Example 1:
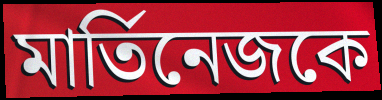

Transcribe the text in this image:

মার্তিনেজকে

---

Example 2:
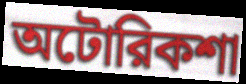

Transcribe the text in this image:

অটোরিকশা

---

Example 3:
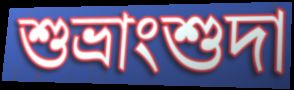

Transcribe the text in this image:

শুভ্রাংশুদা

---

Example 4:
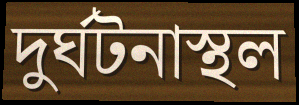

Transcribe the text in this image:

দুর্ঘটনাস্থল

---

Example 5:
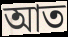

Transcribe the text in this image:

আত